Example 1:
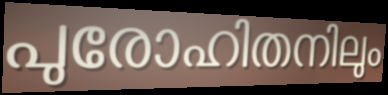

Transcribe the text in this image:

പുരോഹിതനിലും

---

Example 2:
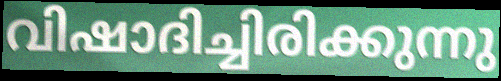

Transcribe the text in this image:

വിഷാദിച്ചിരിക്കുന്നു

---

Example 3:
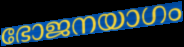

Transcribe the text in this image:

ഭോജനയാഗം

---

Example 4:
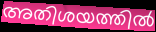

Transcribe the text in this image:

അതിശയത്തിൽ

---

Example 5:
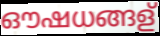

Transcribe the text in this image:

ഔഷധങ്ങള്